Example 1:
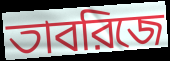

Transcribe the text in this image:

তাবরিজে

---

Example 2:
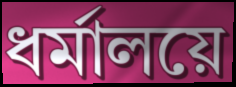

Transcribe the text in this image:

ধর্মালয়ে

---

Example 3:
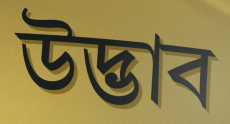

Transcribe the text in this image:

উদ্ভাব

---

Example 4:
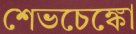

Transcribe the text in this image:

শেভচেঙ্কো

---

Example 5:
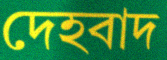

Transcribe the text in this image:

দেহবাদ